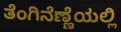
ತೆಂಗಿನೆಣ್ಣೆಯಲ್ಲಿ